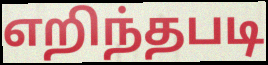
எறிந்தபடி